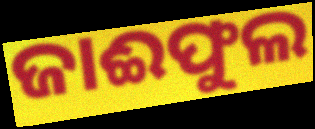
ଜାଈଫୁଲ